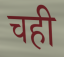
चही